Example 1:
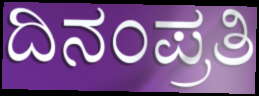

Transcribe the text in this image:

ದಿನಂಪ್ರತಿ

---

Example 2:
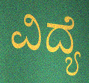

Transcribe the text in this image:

ವಿದ್ಯೆ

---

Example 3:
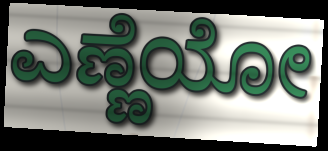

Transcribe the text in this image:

ಎಣ್ಣೆಯೋ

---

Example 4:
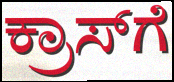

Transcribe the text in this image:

ಕ್ರಾಸ್‌ಗೆ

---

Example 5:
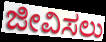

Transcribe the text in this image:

ಜೀವಿಸಲು